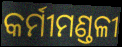
କର୍ମୀମଣ୍ଡଳୀ